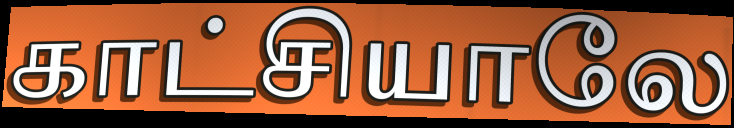
காட்சியாலே